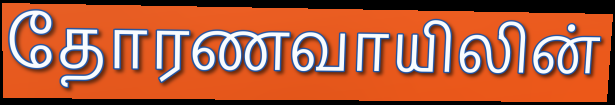
தோரணவாயிலின்